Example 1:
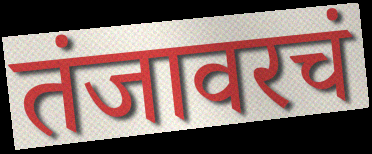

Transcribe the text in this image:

तंजावरचं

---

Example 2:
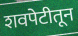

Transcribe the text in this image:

शवपेटीतून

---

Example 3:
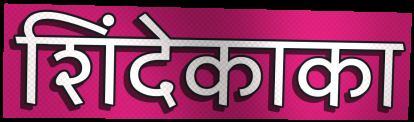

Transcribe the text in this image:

शिंदेकाका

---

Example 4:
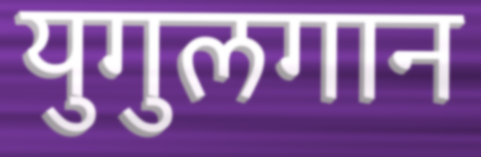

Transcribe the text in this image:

युगुलगान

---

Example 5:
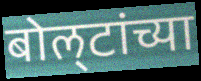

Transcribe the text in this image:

बोल्टांच्या